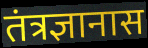
तंत्रज्ञानास